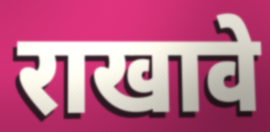
राखावे